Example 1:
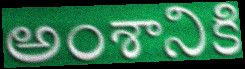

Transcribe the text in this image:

అంశానికి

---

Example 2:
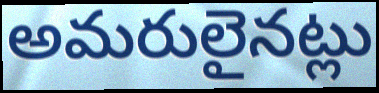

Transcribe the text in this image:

అమరులైనట్లు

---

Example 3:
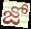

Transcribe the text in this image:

జో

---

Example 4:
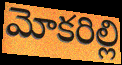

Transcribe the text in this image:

మోకరిల్లి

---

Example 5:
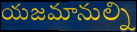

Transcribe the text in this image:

యజమానుల్ని